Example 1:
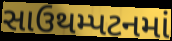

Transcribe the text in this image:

સાઉથમ્પટનમાં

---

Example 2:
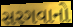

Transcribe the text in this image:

સરગવાનો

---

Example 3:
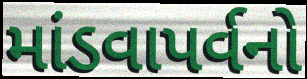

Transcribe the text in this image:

માંડવાપર્વનો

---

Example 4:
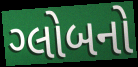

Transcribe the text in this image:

ગ્લોબનો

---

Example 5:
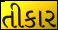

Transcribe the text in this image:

તીકાર